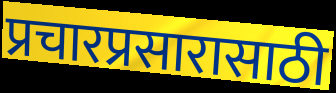
प्रचारप्रसारासाठी